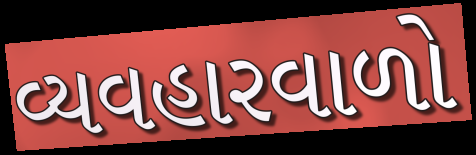
વ્યવહારવાળો